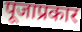
पूजाप्रकार